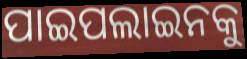
ପାଇପଲାଇନକୁ